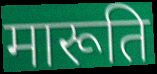
मारूति